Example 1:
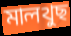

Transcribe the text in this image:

মালথুছ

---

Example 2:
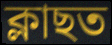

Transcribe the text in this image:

ক্লাছত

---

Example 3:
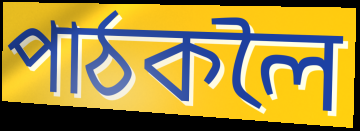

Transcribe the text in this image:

পাঠকলৈ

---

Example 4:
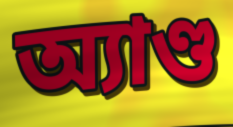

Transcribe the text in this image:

অ্যাণ্ড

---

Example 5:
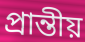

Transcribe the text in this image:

প্ৰান্তীয়